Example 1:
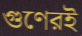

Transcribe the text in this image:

গুণেরই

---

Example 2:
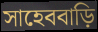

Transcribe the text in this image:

সাহেববাড়ি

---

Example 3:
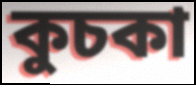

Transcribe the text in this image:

কুচকা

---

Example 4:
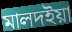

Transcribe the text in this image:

মালদইয়া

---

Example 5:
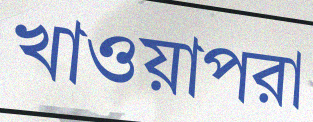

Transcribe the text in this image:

খাওয়াপরা